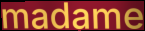
madame